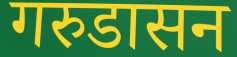
गरुडासन